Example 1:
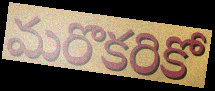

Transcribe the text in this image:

మరొకరికో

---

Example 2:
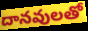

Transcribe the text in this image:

దానవులతో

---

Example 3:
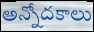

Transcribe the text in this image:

అన్నోదకాలు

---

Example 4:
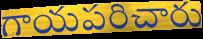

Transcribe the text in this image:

గాయపరిచారు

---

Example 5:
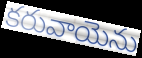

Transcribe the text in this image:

కరువాయెను